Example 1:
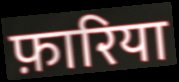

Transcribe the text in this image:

फ़ारिया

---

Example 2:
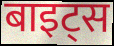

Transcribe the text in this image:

बाइट्स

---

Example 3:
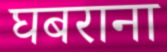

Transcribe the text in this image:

घबराना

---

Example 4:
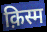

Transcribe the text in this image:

क़िस्म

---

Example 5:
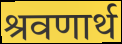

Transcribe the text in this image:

श्रवणार्थ